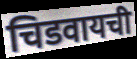
चिडवायची